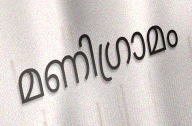
മണിഗ്രാമം